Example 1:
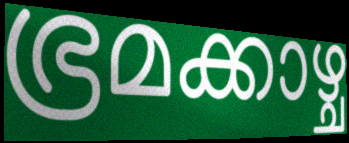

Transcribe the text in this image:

ഭ്രമക്കാഴ്ച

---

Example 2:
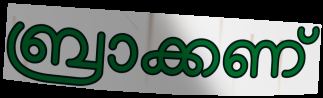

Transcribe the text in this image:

ബ്രാക്കണ്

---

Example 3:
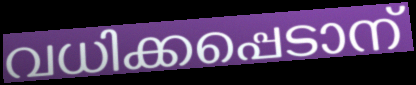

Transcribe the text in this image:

വധിക്കപ്പെടാന്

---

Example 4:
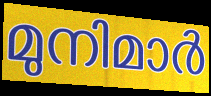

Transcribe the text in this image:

മുനിമാർ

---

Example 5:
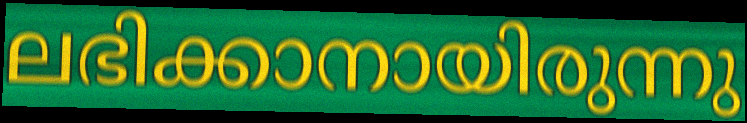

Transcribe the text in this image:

ലഭിക്കാനായിരുന്നു